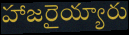
హాజరైయ్యారు